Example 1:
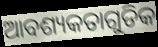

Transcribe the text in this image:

ଆବଶ୍ୟକତାଗୁଡିକ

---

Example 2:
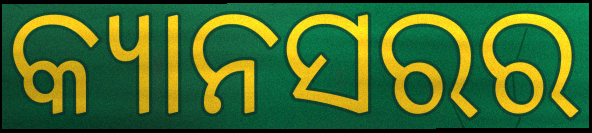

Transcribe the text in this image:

କ୍ୟାନସରର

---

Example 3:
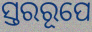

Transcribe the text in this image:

ସ୍ତରରୂପେ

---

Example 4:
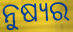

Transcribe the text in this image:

ନୁଷ୍ୟର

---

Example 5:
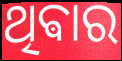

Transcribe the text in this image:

ଥିଵାର